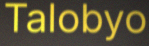
Talobyo